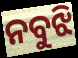
ନବୁଝି